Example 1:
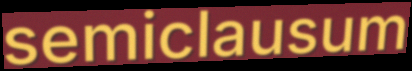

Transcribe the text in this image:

semiclausum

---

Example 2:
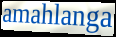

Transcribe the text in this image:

amahlanga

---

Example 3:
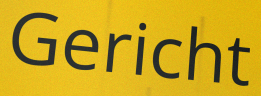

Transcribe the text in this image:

Gericht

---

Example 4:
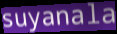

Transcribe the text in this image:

suyanala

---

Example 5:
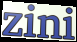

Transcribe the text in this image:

zini